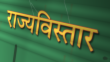
राज्यविस्तार